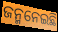
ଜନ୍ମନେଇଛି